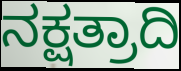
ನಕ್ಷತ್ರಾದಿ